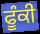
ਫੂੰਕੀ